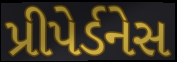
પ્રીપેર્ડનેસ